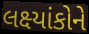
લક્ષ્યાંકોને